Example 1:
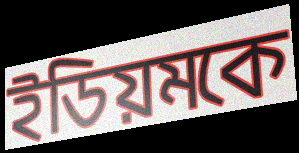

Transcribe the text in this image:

ইডিয়মকে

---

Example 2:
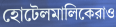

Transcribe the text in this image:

হোটেলমালিকেরাও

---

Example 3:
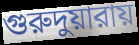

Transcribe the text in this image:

গুরুদুয়ারায়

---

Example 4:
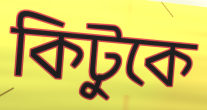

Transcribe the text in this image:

কিটুকে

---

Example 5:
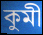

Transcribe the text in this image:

কুমী